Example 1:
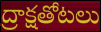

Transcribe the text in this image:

ద్రాక్షతోటలు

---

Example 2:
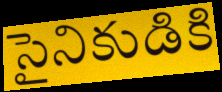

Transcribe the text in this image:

సైనికుడికి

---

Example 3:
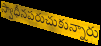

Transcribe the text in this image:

స్వాధీనపరుచుకున్నారు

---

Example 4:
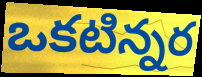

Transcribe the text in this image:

ఒకటిన్నర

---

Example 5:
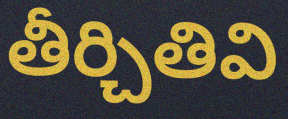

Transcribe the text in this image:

తీర్చితివి